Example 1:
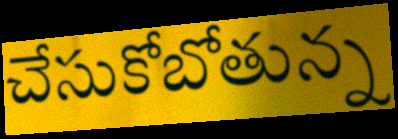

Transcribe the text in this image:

చేసుకోబోతున్న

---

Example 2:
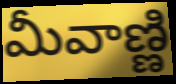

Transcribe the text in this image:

మీవాణ్ణి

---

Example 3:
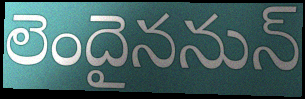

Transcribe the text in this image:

లెందైననున్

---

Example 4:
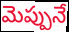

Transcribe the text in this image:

మెప్పునే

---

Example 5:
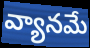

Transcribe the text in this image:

వ్యానమే